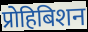
प्रोहिबिशन